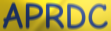
APRDC